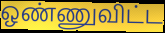
ஒண்ணுவிட்ட